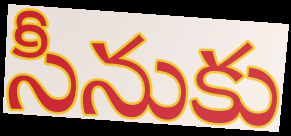
సీనుకు